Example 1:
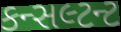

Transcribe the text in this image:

કન્સલ્ટન્ટ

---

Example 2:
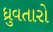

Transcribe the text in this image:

ધ્રુવતારો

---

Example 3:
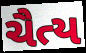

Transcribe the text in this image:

ચૈત્ય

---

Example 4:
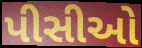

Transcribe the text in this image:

પીસીઓ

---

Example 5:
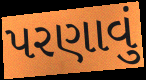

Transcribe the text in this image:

પરણાવું